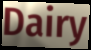
Dairy